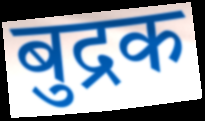
बुद्रक